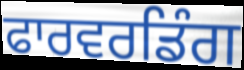
ਫਾਰਵਰਡਿੰਗ